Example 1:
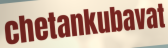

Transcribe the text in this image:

chetankubavat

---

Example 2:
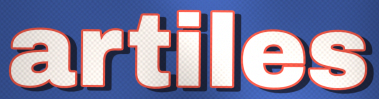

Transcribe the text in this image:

artiles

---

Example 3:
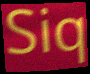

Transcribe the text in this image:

Siq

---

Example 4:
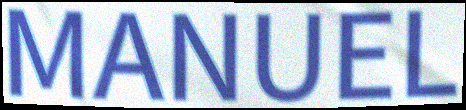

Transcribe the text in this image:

MANUEL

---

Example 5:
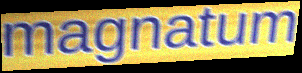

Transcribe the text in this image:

magnatum